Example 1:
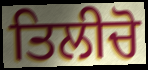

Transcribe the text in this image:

ਤਿਲੀਚੋ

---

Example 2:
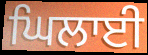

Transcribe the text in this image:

ਘਿਲਾਈ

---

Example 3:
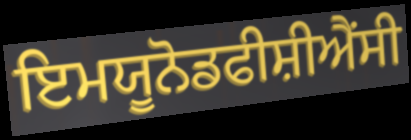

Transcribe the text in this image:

ਇਮਯੂਨੋਡਫੀਸ਼ੀਐਂਸੀ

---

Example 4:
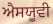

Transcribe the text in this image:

ਐਸਯੂਵੀ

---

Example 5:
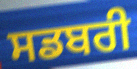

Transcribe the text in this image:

ਸਡਬਰੀ